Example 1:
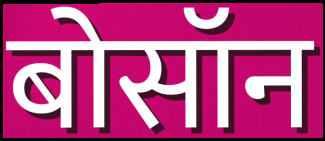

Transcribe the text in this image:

बोसॉन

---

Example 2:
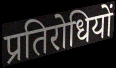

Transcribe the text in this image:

प्रतिरोधियों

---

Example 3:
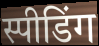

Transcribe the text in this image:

स्‍पीडिंग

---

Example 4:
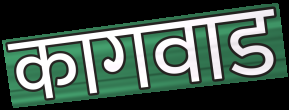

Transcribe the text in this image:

कागवाड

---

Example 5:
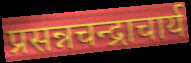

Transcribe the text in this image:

प्रसन्नचन्द्राचार्य